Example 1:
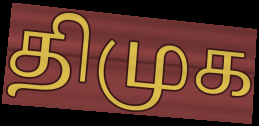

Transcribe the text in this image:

திமுக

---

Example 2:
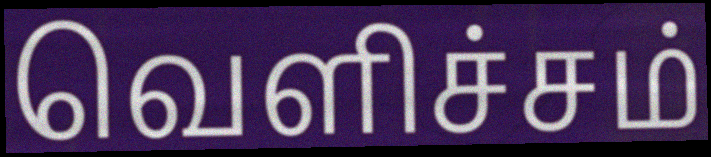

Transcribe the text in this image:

வெளிச்சம்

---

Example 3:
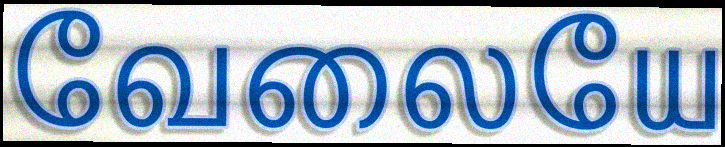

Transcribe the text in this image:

வேலையே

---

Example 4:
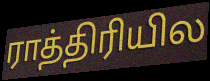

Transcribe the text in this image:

ராத்திரியில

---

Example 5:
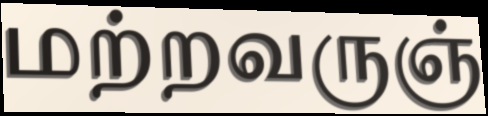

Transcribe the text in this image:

மற்றவருஞ்